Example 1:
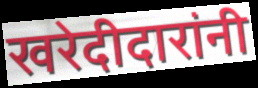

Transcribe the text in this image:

खरेदीदारांनी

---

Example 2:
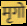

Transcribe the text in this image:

मृगो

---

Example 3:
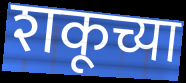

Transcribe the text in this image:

शकूच्या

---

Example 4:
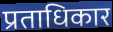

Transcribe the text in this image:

प्रताधिकार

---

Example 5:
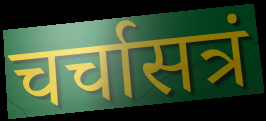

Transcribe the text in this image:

चर्चासत्रं